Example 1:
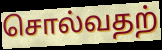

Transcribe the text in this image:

சொல்வதற்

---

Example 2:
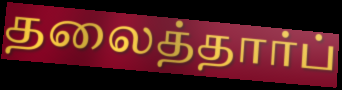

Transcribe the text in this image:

தலைத்தார்ப்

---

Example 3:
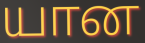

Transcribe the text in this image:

யான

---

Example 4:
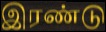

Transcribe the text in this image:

இரண்டு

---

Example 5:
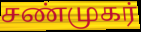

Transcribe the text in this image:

சண்முகர்